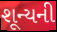
શૂન્યની